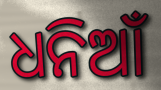
ଧନିଆଁ